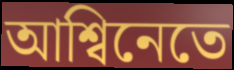
আশ্বিনেতে